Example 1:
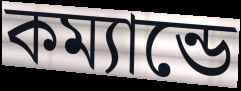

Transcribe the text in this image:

কম্যান্ডে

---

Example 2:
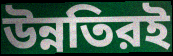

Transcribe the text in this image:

উন্নতিরই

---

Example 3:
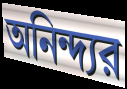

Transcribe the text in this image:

অনিন্দ্যর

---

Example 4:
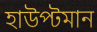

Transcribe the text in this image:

হাউপ্টমান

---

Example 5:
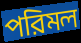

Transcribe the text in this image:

পরিমল